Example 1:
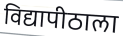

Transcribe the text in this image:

विद्यापीठाला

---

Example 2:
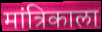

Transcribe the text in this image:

मांत्रिकाला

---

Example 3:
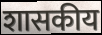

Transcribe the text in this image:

शासकीय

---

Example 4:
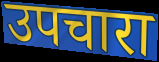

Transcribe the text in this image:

उपचारा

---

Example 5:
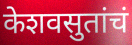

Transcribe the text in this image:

केशवसुतांचं